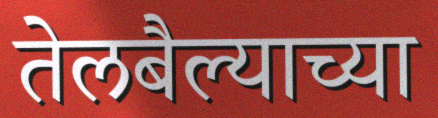
तेलबैल्याच्या